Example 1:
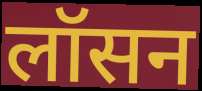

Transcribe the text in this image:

लॉसन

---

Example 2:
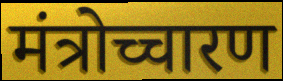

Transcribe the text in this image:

मंत्रोच्चारण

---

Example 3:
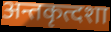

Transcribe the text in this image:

अन्तकृत्दशा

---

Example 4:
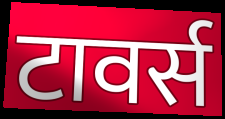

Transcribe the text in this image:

टावर्स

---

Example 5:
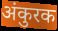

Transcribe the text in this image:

अंकुरक